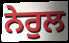
ਨੇਰੁਲ